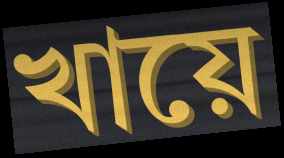
খায়ে